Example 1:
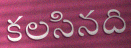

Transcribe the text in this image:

కలసినది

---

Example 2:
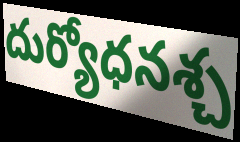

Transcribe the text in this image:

దుర్యోధనశ్చ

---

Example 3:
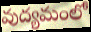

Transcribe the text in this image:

వుద్యమంలో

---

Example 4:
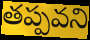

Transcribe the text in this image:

తప్పవని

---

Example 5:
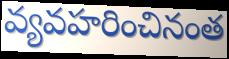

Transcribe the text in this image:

వ్యవహరించినంత